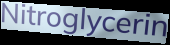
Nitroglycerin